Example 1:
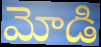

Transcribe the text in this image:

మోడి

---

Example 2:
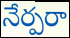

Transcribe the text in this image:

నేర్పరా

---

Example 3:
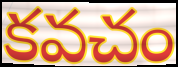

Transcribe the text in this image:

కవచం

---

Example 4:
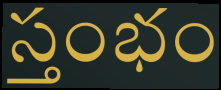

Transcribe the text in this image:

స్తంభం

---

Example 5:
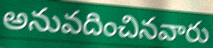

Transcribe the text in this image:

అనువదించినవారు